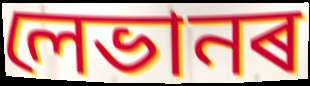
লেভানৰ